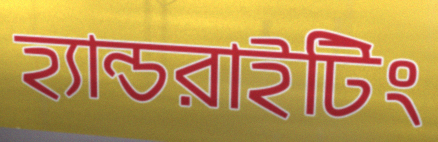
হ্যান্ডরাইটিং